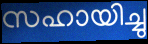
സഹായിച്ചു